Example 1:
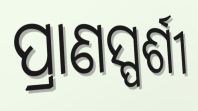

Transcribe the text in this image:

ପ୍ରାଣସ୍ପର୍ଶୀ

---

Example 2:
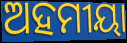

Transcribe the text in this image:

ଅହମୀୟା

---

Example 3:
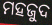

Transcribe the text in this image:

ମହଜୁଦ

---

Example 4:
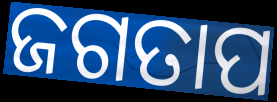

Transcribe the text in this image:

ଜଗତାପ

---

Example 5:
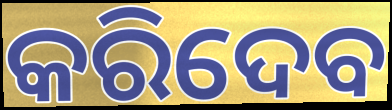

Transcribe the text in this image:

କରିଦେବ